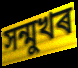
সন্মুখৰ